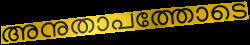
അനുതാപത്തോടെ